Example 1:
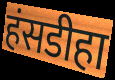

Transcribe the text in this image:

हंसडीहा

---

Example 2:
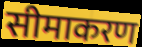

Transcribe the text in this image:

सीमाकरण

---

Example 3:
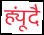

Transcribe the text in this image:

ह्यूंदै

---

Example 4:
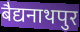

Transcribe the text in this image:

बैद्यनाथपुर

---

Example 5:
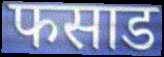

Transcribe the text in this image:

फसाड